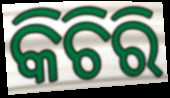
କିଚିରି